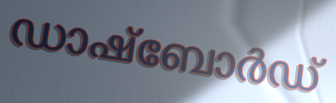
ഡാഷ്ബോർഡ്